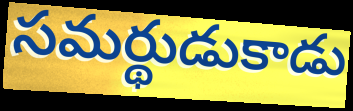
సమర్థుడుకాడు